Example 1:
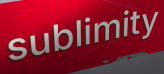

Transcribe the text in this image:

sublimity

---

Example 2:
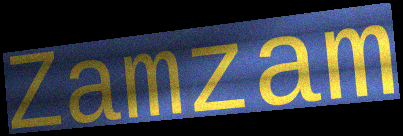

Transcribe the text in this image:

Zamzam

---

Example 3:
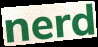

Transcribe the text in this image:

nerd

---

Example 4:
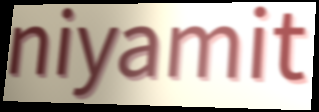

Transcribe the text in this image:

niyamit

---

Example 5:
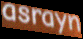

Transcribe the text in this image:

asrayn